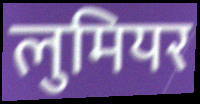
लुमियर